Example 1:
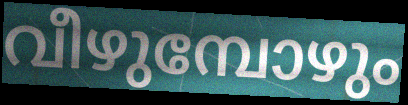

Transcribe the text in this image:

വീഴുമ്പോഴും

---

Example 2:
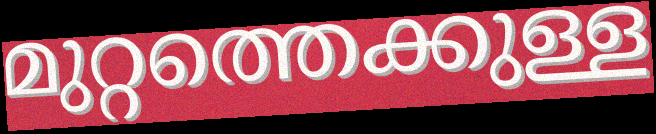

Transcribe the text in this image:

മുറ്റത്തെക്കുള്ള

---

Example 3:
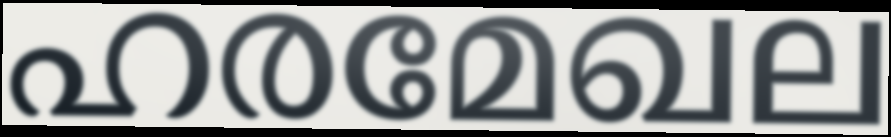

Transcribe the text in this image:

ഹരമേഖല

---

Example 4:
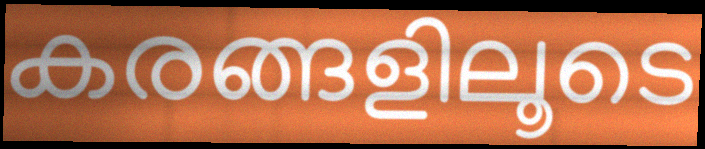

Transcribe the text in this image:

കരങ്ങളിലൂടെ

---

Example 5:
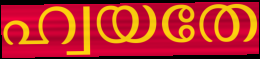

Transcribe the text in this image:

ഹ്വയതേ